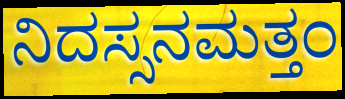
ನಿದಸ್ಸನಮತ್ತಂ